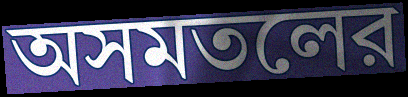
অসমতলের